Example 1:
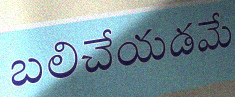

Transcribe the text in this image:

బలిచేయడమే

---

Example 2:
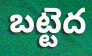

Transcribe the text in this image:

బట్టెద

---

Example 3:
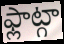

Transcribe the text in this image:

ఫ్లాట్గా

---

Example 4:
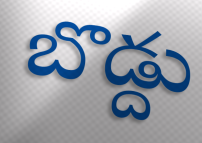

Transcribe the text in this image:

బొడ్దు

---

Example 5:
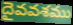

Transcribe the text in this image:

దైవవశము